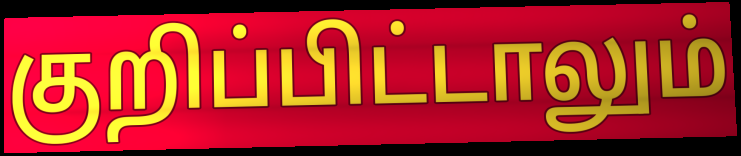
குறிப்பிட்டாலும்